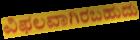
ವಿಫಲವಾಗಿರಬಹುದು